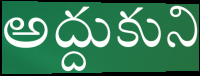
అద్దుకుని